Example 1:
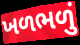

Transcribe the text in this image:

ખળભળું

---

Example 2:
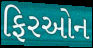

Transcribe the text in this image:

ફિરઓન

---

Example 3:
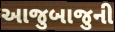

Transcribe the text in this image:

આજુબાજુની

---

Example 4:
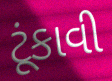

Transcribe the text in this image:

ટૂંકાવી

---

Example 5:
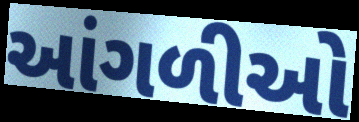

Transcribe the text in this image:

આંગળીઓ